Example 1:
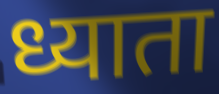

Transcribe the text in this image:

ध्याता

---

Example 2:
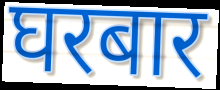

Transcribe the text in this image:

घरबार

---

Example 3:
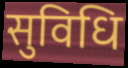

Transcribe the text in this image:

सुविधि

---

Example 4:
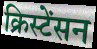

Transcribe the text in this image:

क्रिस्टेंसन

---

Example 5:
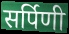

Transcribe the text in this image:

सर्पिणी